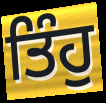
ਤਿੰਹੁ